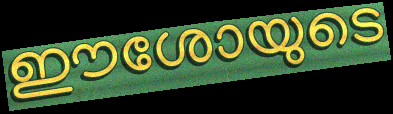
ഈശോയുടെ